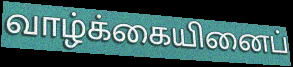
வாழ்க்கையினைப்